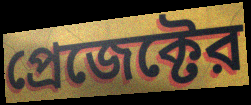
প্রেজেক্টের